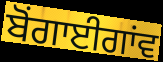
ਬੋਂਗਾਈਗਾਂਵ